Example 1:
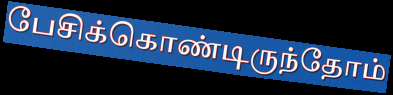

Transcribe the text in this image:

பேசிக்கொண்டிருந்தோம்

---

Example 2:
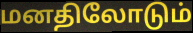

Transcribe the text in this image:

மனதிலோடும்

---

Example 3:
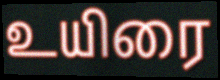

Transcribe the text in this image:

உயிரை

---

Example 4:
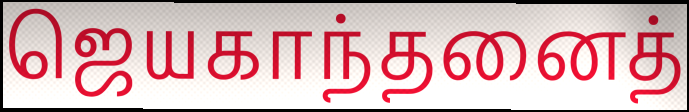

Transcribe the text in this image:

ஜெயகாந்தனைத்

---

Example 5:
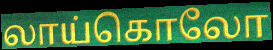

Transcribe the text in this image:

லாய்கொலோ